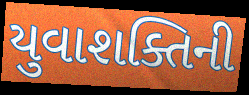
યુવાશક્તિની